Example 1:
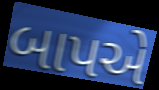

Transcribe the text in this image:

બાપએ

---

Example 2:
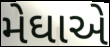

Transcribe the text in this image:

મેઘાએ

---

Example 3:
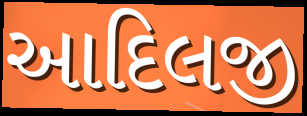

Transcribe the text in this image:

આદિલજી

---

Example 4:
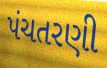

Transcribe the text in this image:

પંચતરણી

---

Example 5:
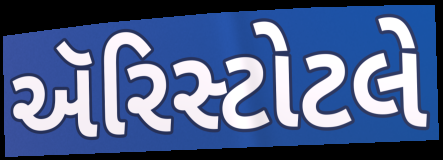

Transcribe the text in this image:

ઍરિસ્ટોટલે